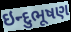
ઇન્દુભૂષણ